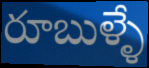
రూబుళ్ళే